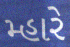
મ્હારે